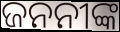
ଜନନୀଙ୍କ